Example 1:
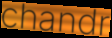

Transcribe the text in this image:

chandr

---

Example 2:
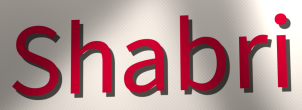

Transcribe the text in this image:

Shabri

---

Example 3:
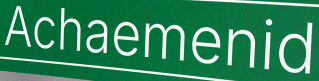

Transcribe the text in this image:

Achaemenid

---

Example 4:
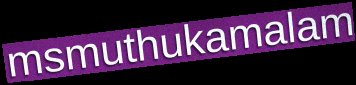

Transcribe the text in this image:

msmuthukamalam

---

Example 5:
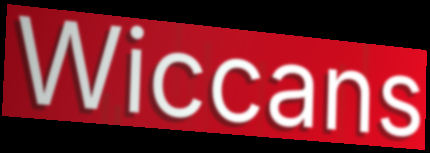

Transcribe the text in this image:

Wiccans